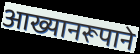
आख्यानरूपाने